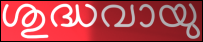
ശുദ്ധവായു